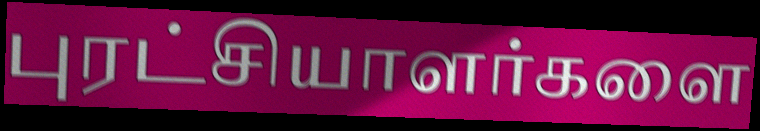
புரட்சியாளர்களை